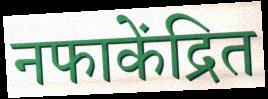
नफाकेंद्रित